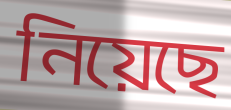
নিয়েছে